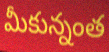
మీకున్నంత